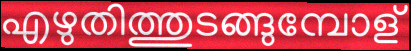
എഴുതിത്തുടങ്ങുമ്പോള്